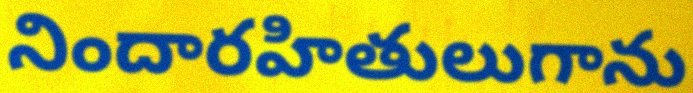
నిందారహితులుగాను